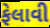
ફેલાવી